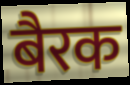
बैरक